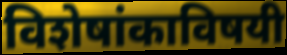
विशेषांकाविषयी